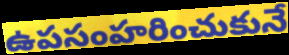
ఉపసంహరించుకునే